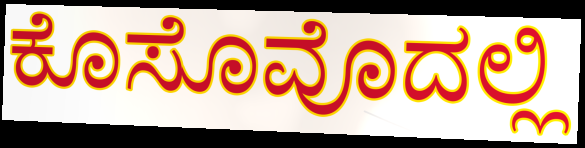
ಕೊಸೊವೊದಲ್ಲಿ